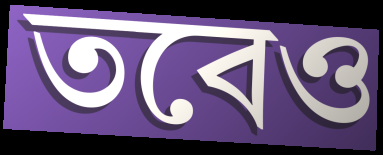
তবেও